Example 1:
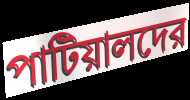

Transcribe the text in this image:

পাটিয়ালদের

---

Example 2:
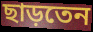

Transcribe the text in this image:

ছাড়তেন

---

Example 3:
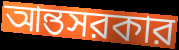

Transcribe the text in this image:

আন্তসরকার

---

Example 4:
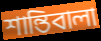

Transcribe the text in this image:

শান্তিবালা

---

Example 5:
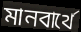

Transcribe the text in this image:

মানবার্থে